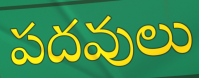
పదవులు